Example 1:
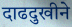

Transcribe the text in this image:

दाढदुखीने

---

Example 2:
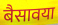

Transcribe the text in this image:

बैसावया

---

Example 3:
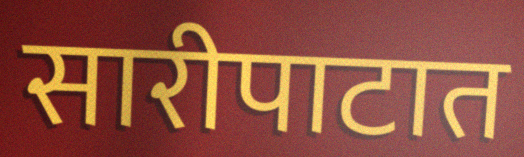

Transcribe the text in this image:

सारीपाटात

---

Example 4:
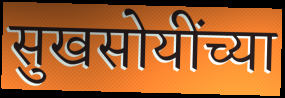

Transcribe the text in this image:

सुखसोयींच्या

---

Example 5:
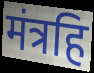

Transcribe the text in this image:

मंत्रहि